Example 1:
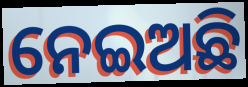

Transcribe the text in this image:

ନେଇଅଛି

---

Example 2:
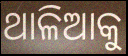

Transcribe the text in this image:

ଥାଳିଆକୁ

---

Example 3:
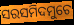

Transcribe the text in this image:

ସରସମିଦମୁଚେ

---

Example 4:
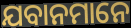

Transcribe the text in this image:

ଯବାନମାନେ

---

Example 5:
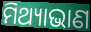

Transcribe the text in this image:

ମିଥ୍ୟାଭାଣ